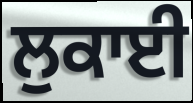
ਲੁਕਾਈ